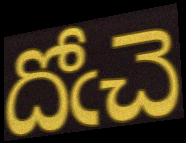
దోఁచె